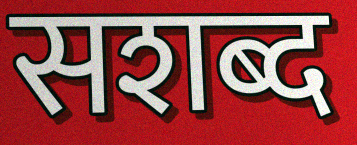
सशब्द